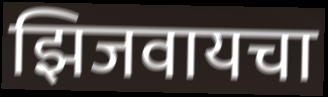
झिजवायचा